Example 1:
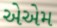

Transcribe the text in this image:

એએમ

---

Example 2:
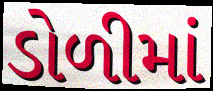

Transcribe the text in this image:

ડોળીમાં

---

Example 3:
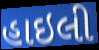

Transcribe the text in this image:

હાઇલી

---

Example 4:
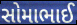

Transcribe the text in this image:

સોમાભાઈ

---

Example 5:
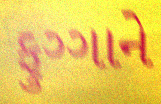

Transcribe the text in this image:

ફુગ્ગાને